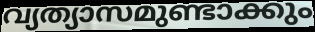
വ്യത്യാസമുണ്ടാക്കും